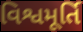
વિશ્વમૂર્તિ